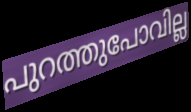
പുറത്തുപോവില്ല